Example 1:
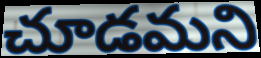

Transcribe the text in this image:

చూడమని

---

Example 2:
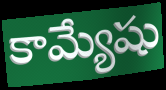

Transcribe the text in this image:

కామ్యేషు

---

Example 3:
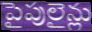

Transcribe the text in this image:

పైపులైన్లు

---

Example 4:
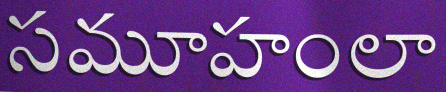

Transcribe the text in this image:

సమూహంలా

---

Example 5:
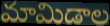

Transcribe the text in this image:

మామిడాల